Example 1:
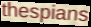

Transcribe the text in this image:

thespians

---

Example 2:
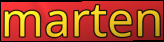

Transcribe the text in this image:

marten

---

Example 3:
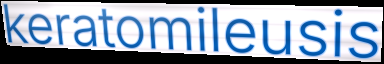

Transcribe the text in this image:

keratomileusis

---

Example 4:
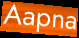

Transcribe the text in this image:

Aapna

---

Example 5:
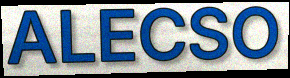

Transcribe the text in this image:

ALECSO